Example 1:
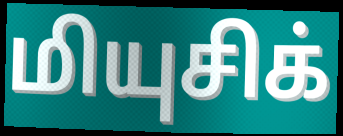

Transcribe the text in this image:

மியுசிக்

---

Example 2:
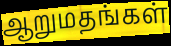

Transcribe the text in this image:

ஆறுமதங்கள்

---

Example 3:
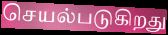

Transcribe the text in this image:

செயல்படுகிறது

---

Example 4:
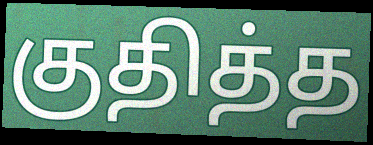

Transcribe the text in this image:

குதித்த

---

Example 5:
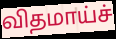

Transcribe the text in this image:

விதமாய்ச்